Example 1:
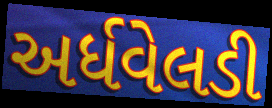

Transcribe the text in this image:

અર્ધવેલડી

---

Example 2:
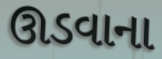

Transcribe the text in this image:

ઊડવાના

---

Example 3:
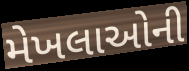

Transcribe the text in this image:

મેખલાઓની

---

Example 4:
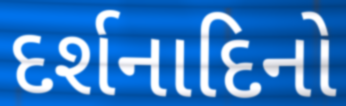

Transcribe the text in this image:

દર્શનાદિનો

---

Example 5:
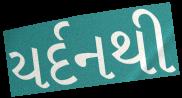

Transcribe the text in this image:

યર્દનથી